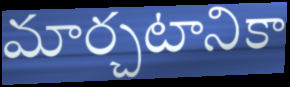
మార్చటానికా